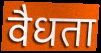
वैधता